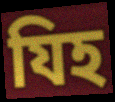
যিহ